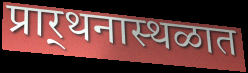
प्रार्थनास्थळात